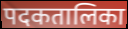
पदकतालिका